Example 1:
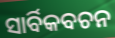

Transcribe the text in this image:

ସାର୍ବିକବଚନ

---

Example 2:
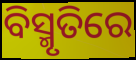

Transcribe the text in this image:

ବିସ୍ମୃତିରେ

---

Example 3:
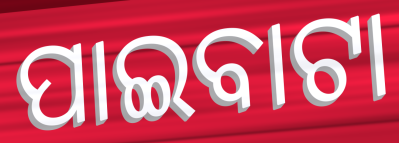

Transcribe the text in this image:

ପାଇବାଟା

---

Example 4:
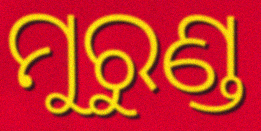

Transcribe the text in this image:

ମୁରୁଣ୍ଡ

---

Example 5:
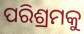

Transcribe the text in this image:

ପରିଶ୍ରମକୁ